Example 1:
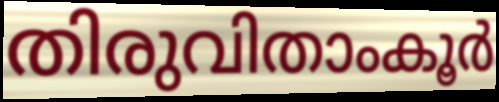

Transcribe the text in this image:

തിരുവിതാംകൂർ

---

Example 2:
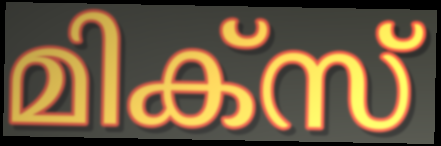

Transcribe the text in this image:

മിക്സ്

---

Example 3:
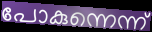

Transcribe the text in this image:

പോകുന്നെന്ന്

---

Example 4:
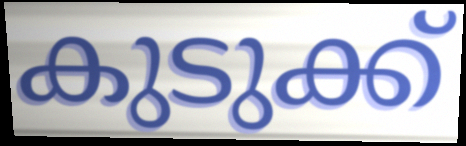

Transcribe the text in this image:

കുടുക്ക്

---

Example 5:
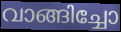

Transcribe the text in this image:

വാങ്ങിച്ചോ